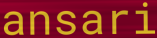
ansari